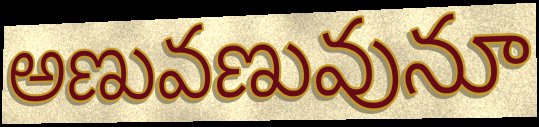
అణువణువునూ